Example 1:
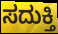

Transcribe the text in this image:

ಸದುಕ್ತಿ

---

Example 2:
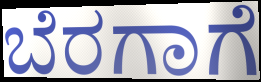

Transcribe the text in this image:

ಬೆರಗಾಗೆ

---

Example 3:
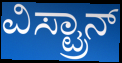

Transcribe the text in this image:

ವಿಸ್ಟ್ರಾನ್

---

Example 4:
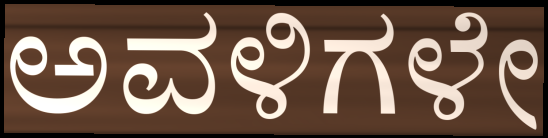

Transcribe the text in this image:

ಅವಳಿಗಳೇ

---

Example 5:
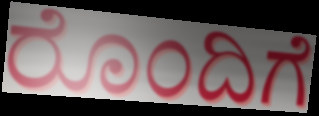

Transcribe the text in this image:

ರೊಂದಿಗೆ